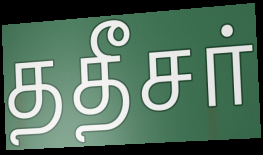
ததீசர்